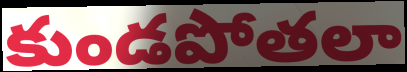
కుండపోతలా